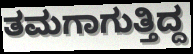
ತಮಗಾಗುತ್ತಿದ್ದ